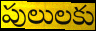
పులులకు